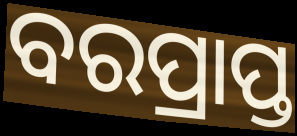
ବରପ୍ରାପ୍ତ